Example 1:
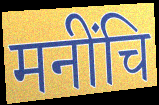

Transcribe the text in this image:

मनींचि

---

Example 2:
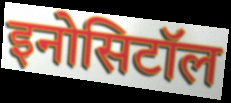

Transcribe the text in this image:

इनोसिटॉल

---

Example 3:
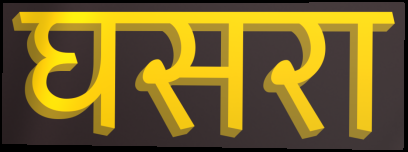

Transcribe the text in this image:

घसरा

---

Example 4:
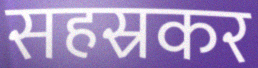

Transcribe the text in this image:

सहस्रकर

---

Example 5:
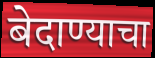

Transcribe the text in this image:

बेदाण्याचा